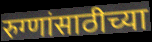
रुग्णांसाठीच्या